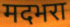
मदभरा